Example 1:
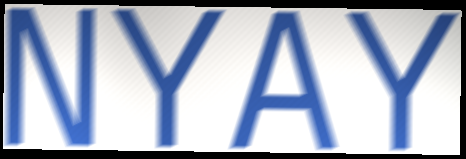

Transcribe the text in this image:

NYAY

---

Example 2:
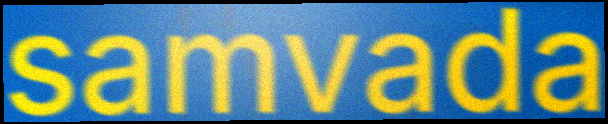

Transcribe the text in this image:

samvada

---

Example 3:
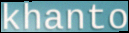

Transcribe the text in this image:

khanto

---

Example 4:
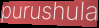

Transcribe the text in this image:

purushula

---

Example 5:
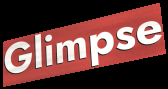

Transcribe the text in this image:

Glimpse